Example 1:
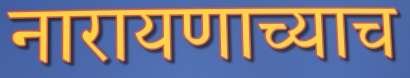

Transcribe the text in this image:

नारायणाच्याच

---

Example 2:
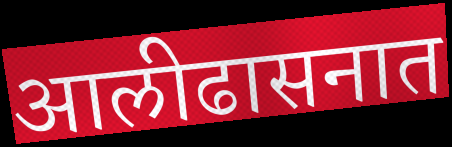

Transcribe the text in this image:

आलीढासनात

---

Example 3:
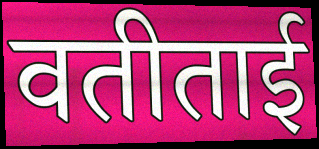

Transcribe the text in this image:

वतीताई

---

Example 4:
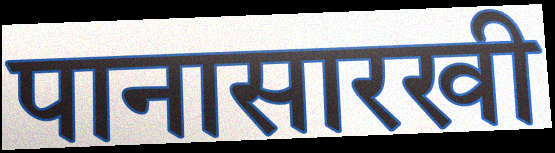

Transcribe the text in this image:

पानासारखी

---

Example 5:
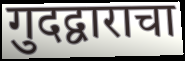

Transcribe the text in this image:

गुदद्वाराचा